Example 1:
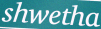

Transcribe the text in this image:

shwetha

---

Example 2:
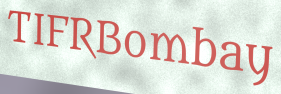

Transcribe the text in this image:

TIFRBombay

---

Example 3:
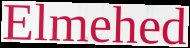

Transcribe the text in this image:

Elmehed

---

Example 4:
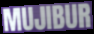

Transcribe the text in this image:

MUJIBUR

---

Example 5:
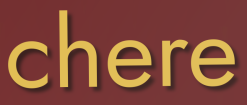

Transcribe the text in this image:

chere